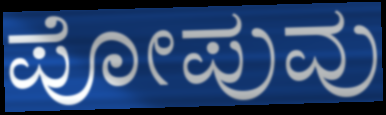
ಪೋಪುವು